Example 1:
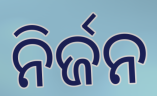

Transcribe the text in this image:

ନିର୍ଜନ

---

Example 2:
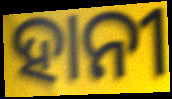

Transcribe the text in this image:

ହାନୀ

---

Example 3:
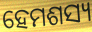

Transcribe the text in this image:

ହେମଶସ୍ୟ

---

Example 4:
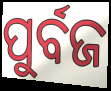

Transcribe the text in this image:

ପୁର୍ବଜ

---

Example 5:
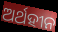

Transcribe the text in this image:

ଅର୍ଥହୀନ